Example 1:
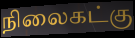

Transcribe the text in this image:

நிலைகட்கு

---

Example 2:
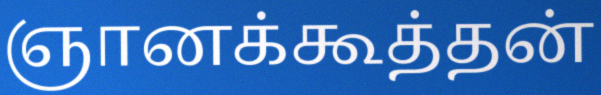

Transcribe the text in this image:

ஞானக்கூத்தன்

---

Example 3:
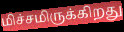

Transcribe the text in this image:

மிச்சமிருக்கிறது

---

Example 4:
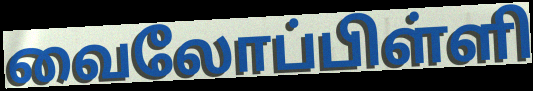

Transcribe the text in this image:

வைலோப்பிள்ளி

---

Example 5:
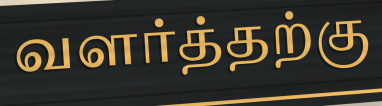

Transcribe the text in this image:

வளர்த்தற்கு